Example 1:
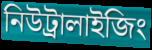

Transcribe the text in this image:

নিউট্রালাইজিং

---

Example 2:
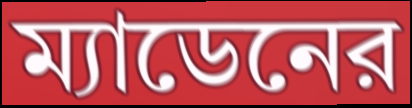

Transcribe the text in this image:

ম্যাডেনের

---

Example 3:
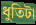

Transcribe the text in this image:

ধুতিটা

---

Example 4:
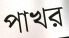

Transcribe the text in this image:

পাখর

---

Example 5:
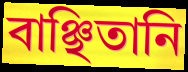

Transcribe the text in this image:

বাঞ্ছিতানি